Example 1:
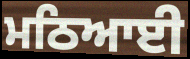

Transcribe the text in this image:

ਮਠਿਆਈ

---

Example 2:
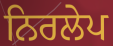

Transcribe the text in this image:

ਨਿਰਲੇਪ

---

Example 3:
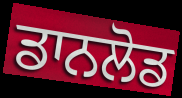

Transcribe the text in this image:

ਡਾਨਲੋਡ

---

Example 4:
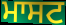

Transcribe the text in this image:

ਮਾਸਟ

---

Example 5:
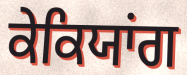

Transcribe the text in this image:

ਕੇਕਿਯਾਂਗ